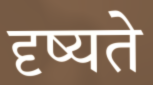
दृष्यते